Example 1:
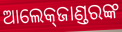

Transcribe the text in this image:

ଆଲେକ୍‍ଜାଣ୍ଡରଙ୍କ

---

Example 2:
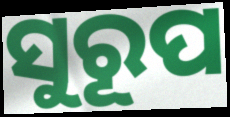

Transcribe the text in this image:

ସୁରୂପ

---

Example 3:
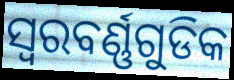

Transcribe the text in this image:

ସ୍ୱରବର୍ଣ୍ଣଗୁଡିକ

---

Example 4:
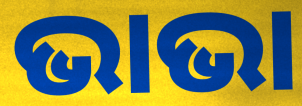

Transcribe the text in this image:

ଭାଭା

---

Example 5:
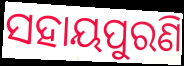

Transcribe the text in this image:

ସହାୟପୁରଣି